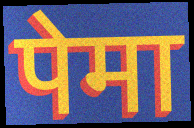
पेमा